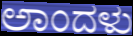
ಅಾಂದಳು